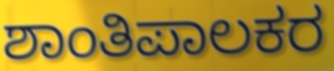
ಶಾಂತಿಪಾಲಕರ